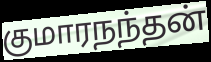
குமாரநந்தன்